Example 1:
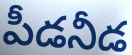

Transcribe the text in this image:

పీడనీడ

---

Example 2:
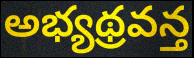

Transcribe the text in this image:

అభ్యథ్రవన్త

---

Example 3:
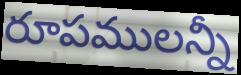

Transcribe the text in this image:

రూపములన్నీ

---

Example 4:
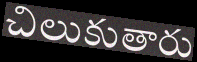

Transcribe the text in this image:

చిలుకుతారు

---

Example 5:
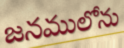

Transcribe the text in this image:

జనములోను